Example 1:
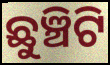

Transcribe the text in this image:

ଛୁଞ୍ଚିଟି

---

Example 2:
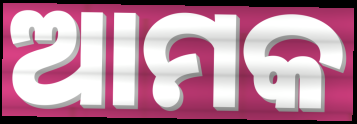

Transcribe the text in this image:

ଆମକ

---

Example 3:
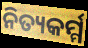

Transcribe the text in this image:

ନିତ୍ୟକର୍ମ୍ମ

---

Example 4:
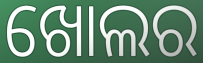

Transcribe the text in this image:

ଖୋଲର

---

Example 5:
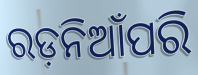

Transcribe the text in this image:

ରଡ଼ନିଆଁପରି